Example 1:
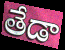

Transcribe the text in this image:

తేడా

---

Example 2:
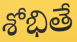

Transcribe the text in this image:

శోభితే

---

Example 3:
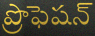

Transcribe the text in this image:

ప్రొఫెషన్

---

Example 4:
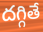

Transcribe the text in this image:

దగ్గితే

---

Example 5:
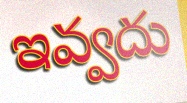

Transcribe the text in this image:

ఇవ్వదు